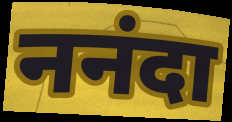
ननंदा